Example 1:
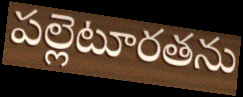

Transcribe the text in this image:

పల్లెటూరతను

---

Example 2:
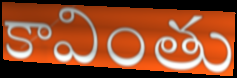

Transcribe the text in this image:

కావింతు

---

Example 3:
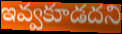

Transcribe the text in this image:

ఇవ్వకూడదని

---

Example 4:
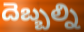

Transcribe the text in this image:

దెబ్బల్ని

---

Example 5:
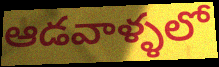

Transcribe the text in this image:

ఆడవాళ్ళలో